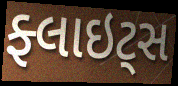
ફ્લાઇટ્સ